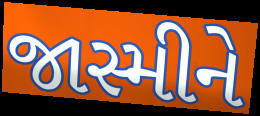
જાસ્મીને